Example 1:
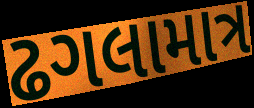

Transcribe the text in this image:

ઢગલામાત્ર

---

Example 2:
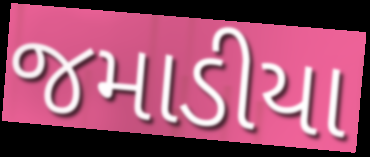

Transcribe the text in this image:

જમાડીયા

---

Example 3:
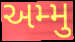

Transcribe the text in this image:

અમ્મુ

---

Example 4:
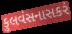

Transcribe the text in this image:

કુલવંસનાસકરં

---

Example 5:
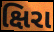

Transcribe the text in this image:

ક્ષિરા